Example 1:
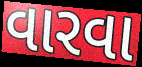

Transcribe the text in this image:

વારવા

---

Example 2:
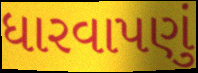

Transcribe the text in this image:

ધારવાપણું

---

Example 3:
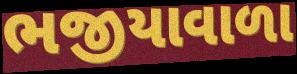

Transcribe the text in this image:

ભજીયાવાળા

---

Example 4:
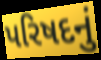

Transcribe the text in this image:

પરિષદનું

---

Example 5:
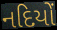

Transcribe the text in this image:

નદિયોં